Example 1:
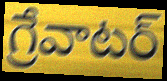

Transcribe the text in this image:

గ్రేవాటర్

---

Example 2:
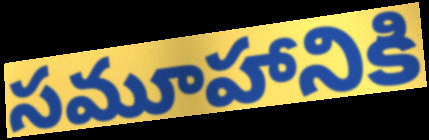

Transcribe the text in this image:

సమూహానికి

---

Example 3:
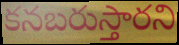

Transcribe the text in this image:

కనబరుస్తారని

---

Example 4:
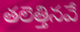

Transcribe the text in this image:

తలెత్తినవే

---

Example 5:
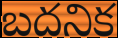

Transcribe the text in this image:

బదనిక